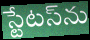
స్టేటస్‌ను